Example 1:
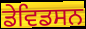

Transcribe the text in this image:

ਡੇਵਿਡਸਨ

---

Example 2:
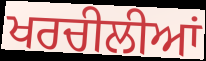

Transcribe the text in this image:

ਖਰਚੀਲੀਆਂ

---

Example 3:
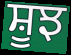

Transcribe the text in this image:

ਸ਼ੂਝ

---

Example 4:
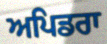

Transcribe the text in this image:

ਅਪਿਡਰਾ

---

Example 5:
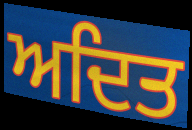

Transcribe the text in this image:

ਅਦਿਤ